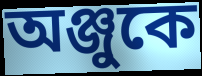
অঞ্জুকে